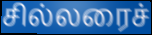
சில்லரைச்